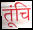
तूंचि